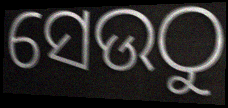
ସେଉଠୁ